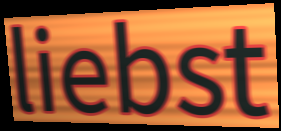
liebst